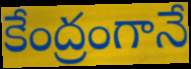
కేంద్రంగానే